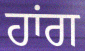
ਹਾਂਗ